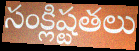
సంక్లిష్టతలు